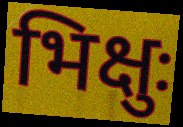
भिक्षुः